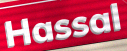
Hassal